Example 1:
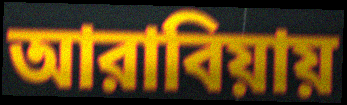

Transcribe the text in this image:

আরাবিয়ায়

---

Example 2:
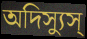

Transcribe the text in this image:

অদিস্যুস্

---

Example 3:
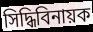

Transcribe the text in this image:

সিদ্ধিবিনায়ক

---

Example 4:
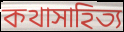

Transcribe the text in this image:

কথাসাহিত্য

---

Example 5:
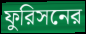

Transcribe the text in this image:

ফুরিসনের